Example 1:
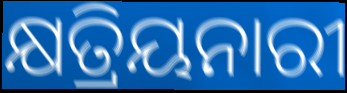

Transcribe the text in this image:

କ୍ଷତ୍ରିୟନାରୀ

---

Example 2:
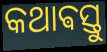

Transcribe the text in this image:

କଥାଵସ୍ତୁ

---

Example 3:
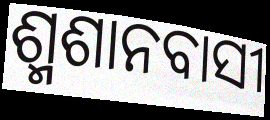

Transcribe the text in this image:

ଶ୍ମଶାନବାସୀ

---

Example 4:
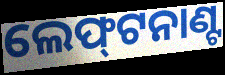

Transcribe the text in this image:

ଲେଫ୍‌ଟନାଣ୍ଟ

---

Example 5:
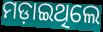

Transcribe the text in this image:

ମଡ଼ାଇଥିଲେ